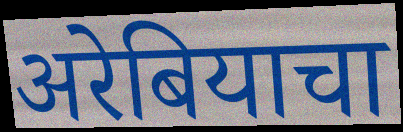
अरेबियाचा